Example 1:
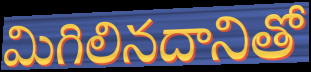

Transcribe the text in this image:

మిగిలినదానితో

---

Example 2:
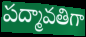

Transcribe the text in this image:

పద్మావతిగా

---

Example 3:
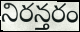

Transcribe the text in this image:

నిరన్తరం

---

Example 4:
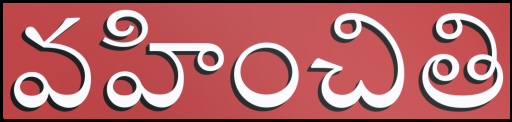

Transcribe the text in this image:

వహించితి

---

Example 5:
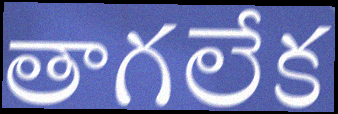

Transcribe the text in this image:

తాగలేక